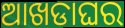
ଆଖଡାଘର